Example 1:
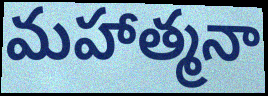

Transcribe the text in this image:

మహాత్మనా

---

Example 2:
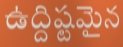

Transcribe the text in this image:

ఉద్దిష్టమైన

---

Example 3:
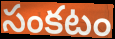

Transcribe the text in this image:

సంకటం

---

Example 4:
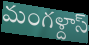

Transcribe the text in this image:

మంగళ్దాస్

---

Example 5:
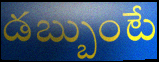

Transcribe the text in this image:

డబ్బుంటే